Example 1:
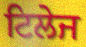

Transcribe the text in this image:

ਟਿਲੇਜ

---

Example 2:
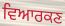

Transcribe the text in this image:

ਵਿਆਰਕਣ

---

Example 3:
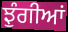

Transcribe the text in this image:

ਝੁੰਗੀਆਂ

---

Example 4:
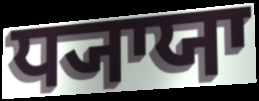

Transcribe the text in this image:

ਧ੍ਯਾਯਾ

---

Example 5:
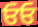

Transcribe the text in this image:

ਓਓ